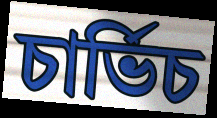
চাৰ্ভিচ